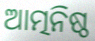
ଆତ୍ମନିଷ୍ଠ